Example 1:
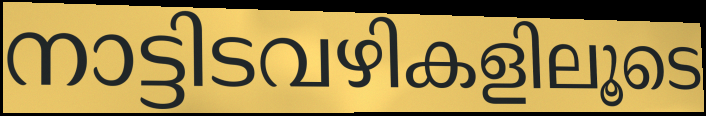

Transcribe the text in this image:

നാട്ടിടവഴികളിലൂടെ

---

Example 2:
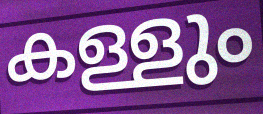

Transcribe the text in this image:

കള്ളും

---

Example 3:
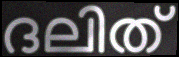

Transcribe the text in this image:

ദലിത്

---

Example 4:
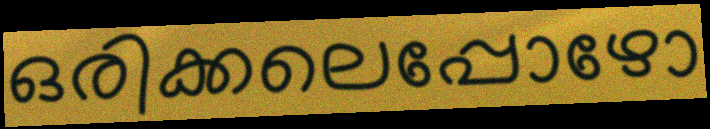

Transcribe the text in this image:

ഒരിക്കലെപ്പോഴോ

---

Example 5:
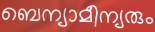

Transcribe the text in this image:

ബെന്യാമീന്യരും